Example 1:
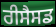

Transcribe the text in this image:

ਰੀਸੈਸਡ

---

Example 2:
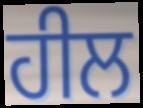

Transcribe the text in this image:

ਹੀਲ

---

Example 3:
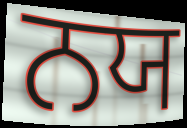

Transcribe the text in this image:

ਨਯ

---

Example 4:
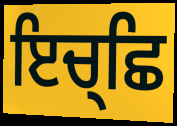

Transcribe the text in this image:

ਇਚ੍ਛਿ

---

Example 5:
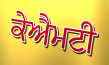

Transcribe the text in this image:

ਕੇਐਮਟੀ